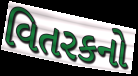
વિતરકનો